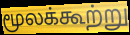
மூலக்கூற்று